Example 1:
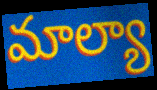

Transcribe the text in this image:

మాల్యా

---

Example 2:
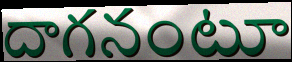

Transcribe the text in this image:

దాగనంటూ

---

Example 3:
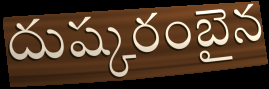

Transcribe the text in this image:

దుష్కరంబైన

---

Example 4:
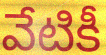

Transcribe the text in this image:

వేటికీ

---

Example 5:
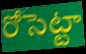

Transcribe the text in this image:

రోసెట్టా